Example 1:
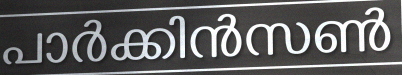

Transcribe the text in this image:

പാർക്കിൻസൺ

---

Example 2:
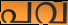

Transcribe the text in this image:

പവ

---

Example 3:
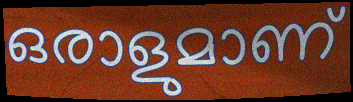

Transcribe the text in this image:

ഒരാളുമാണ്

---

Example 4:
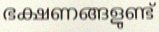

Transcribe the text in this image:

ഭക്ഷണങ്ങളുണ്ട്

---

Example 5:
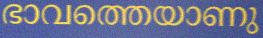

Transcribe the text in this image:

ഭാവത്തെയാണു